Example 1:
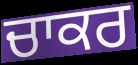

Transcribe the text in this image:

ਚਾਕਰ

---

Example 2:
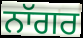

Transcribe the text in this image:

ਨਾੱਗਰ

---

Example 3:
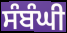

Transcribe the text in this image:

ਸੰਬੰਘੀ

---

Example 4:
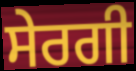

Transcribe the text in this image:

ਸੇਰਗੀ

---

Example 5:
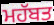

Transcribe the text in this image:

ਮਹੱਬਤ